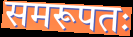
समरूपतः